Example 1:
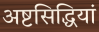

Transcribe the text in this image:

अष्टसिद्धियां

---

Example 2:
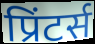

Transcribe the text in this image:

प्रिंटर्स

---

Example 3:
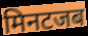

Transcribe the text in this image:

मिनटजब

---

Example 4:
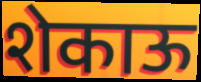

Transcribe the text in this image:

शेकाऊ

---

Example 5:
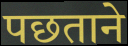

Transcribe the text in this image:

पछताने